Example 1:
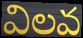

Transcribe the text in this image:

విలవ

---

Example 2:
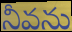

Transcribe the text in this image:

నీవను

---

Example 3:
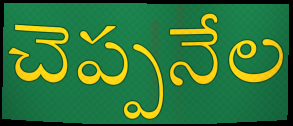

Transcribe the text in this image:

చెప్పనేల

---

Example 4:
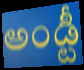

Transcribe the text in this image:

అండ్టీ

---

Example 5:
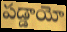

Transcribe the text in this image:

పడ్డాయో